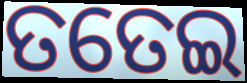
ତତେଇ